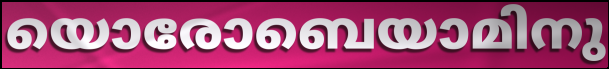
യൊരോബെയാമിനു